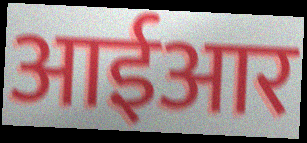
आईआर